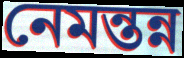
নেমন্তন্ন